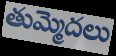
తుమ్మెదలు